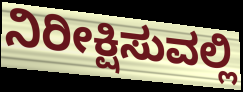
ನಿರೀಕ್ಷಿಸುವಲ್ಲಿ